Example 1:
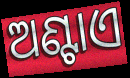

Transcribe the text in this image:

ଅଣ୍ଟାଏ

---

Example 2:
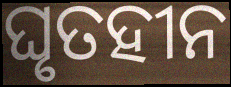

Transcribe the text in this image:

ଘୃତହୀନ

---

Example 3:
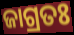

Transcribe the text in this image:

ଜାଗ୍ରତଃ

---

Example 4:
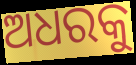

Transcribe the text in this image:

ଅଧରକୁ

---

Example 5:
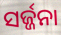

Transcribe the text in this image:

ସର୍ଜ୍ଜନା